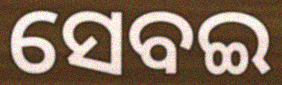
ସେବଇ